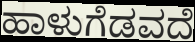
ಹಾಳುಗೆಡವದೆ